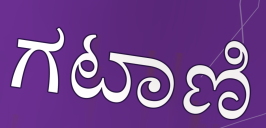
ಗಟಾಣಿ